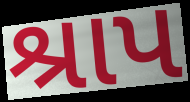
શ્રાપ